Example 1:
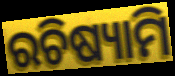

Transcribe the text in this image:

ରଚିଷ୍ୟାମି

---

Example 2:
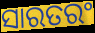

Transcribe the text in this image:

ସାରତରଂ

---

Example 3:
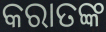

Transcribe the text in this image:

କରାତଙ୍କ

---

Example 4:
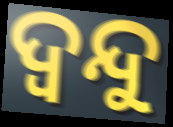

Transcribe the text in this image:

ଦ୍ଵନ୍ଦୁ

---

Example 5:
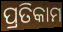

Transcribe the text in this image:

ପ୍ରତିକାମ